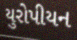
યુરોપીયન